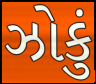
ઝોકું